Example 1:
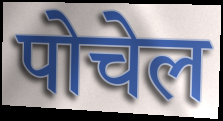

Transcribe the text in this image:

पोचेल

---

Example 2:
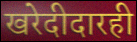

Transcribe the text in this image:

खरेदीदारही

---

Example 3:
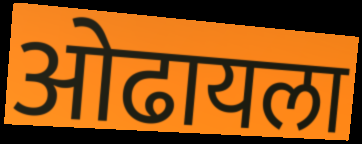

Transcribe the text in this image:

ओढायला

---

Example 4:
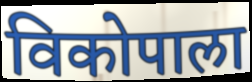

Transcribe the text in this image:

विकोपाला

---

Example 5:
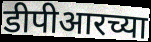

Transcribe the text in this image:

डीपीआरच्या